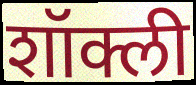
शॉक्ली